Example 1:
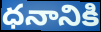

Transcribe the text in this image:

ధనానికి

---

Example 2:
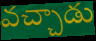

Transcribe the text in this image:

వచ్చాడు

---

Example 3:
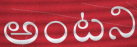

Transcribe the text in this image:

అంటని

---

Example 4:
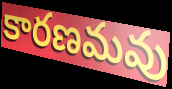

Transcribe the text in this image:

కారణమవు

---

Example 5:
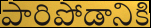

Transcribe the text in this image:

పారిపోడానికి